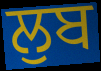
ਲੁਬ